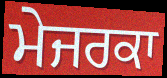
ਮੇਜਰਕਾ